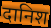
दानिश